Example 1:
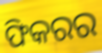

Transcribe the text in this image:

ଫିକରର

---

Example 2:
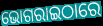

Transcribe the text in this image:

ଭୋଗରାଇଠାରେ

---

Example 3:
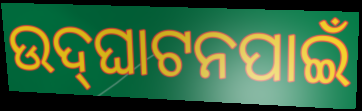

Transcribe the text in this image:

ଉଦ୍‌ଘାଟନପାଇଁ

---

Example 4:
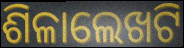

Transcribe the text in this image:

ଶିଳାଲେଖଟି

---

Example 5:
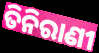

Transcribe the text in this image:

ତିନିରାଣୀ